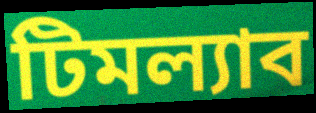
টিমল্যাব